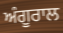
ਅੰਗੂਰਾਲ